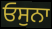
ਓਸੁਨਾ